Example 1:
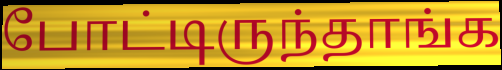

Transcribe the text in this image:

போட்டிருந்தாங்க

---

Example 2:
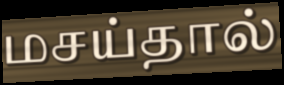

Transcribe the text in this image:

மசய்தால்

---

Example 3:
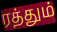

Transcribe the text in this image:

ரத்தும்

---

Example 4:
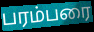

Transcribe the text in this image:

பரம்பரை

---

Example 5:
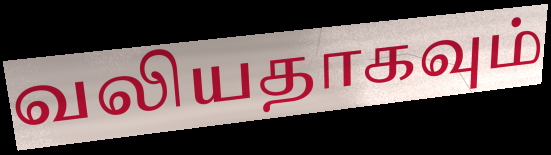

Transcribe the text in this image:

வலியதாகவும்